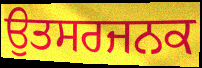
ਉਤਸਰਜਨਕ